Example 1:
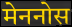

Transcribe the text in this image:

मेननोस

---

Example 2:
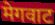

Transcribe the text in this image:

मेगवाट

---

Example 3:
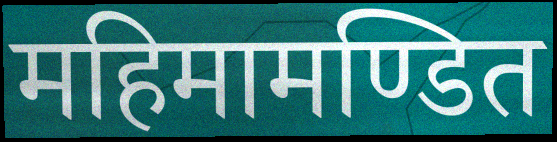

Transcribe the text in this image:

महिमामण्डित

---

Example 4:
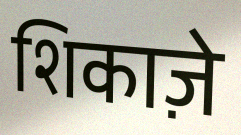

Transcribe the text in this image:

शिकाज़े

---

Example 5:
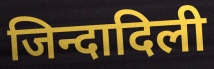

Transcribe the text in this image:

जिन्दादिली